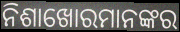
ନିଶାଖୋରମାନଙ୍କର